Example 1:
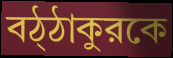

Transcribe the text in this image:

বঠ্ঠাকুরকে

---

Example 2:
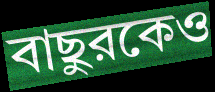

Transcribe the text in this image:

বাছুরকেও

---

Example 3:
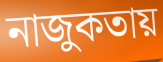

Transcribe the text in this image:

নাজুকতায়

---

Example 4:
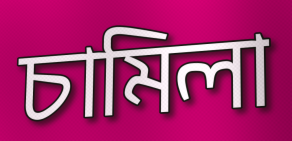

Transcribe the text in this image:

চামিলা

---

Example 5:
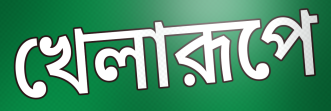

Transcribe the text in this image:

খেলারূপে